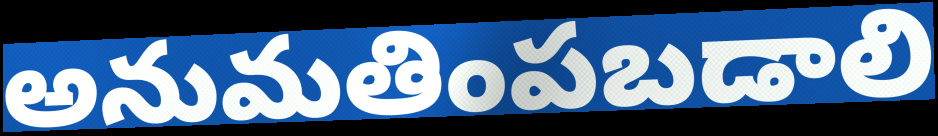
అనుమతింపబడాలి